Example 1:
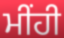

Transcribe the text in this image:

ਮੀਂਹੀ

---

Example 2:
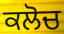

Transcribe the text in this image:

ਕਲੋਚ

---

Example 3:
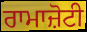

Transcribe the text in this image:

ਰਾਮਾਜ਼ੋਟੀ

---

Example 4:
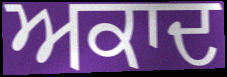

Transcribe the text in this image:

ਅਕਾਦ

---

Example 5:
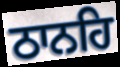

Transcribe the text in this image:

ਠਾਨਹਿ